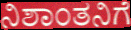
ನಿಶಾಂತನಿಗೆ